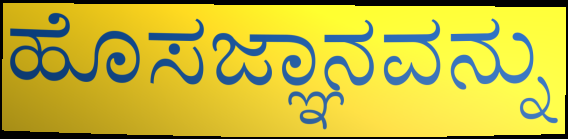
ಹೊಸಜ್ಞಾನವನ್ನು